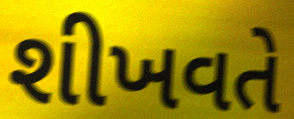
શીખવતે